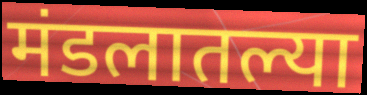
मंडलातल्या